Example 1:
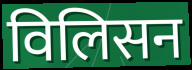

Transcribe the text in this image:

विलिसन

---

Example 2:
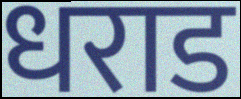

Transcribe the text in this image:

धराड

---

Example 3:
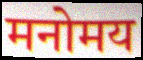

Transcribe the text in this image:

मनोमय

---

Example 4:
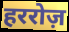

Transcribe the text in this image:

हररोज़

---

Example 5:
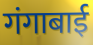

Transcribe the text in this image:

गंगाबाई